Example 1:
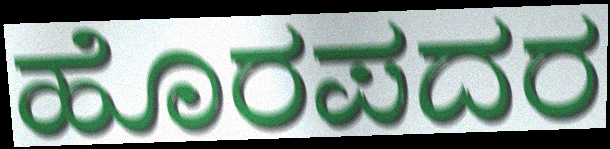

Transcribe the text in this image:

ಹೊರಪದರ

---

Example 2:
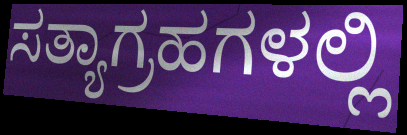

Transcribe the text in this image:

ಸತ್ಯಾಗ್ರಹಗಳಲ್ಲಿ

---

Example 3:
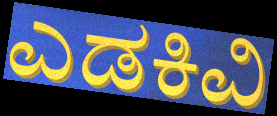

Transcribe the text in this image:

ಎಡಕಿವಿ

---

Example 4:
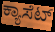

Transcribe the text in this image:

ಕ್ಯಾಸೆಟ್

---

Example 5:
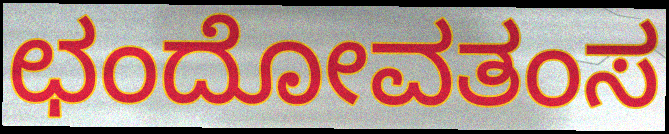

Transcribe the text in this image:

ಛಂದೋವತಂಸ